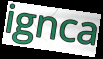
ignca